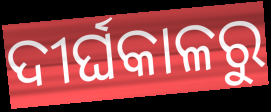
ଦୀର୍ଘକାଳରୁ